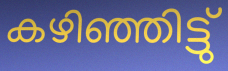
കഴിഞ്ഞിട്ടു്